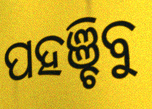
ପହଞ୍ଚିବୁ